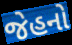
જેહનો